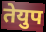
तेयुप